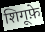
शिगूफ़े